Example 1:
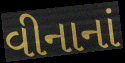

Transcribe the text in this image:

વીનાનાં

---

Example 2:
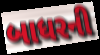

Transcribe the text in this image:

બાધરની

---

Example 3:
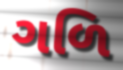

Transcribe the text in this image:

ગળિ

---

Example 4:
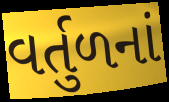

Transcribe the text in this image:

વર્તુળનાં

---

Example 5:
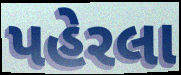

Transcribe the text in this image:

પહેરલા